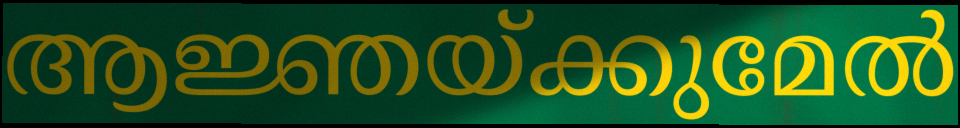
ആജ്ഞയ്ക്കുമേൽ